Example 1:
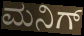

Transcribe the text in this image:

ಮನಿಗ್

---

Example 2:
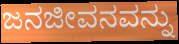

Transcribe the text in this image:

ಜನಜೀವನವನ್ನು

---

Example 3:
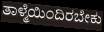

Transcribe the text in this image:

ತಾಳ್ಮೆಯಿಂದಿರಬೇಕು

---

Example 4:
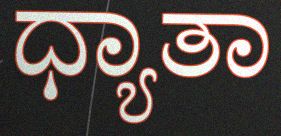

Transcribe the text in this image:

ಧ್ಯಾತಾ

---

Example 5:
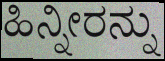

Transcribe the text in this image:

ಹಿನ್ನೀರನ್ನು